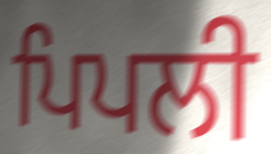
ਪਿਪਲੀ